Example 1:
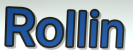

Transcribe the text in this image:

Rollin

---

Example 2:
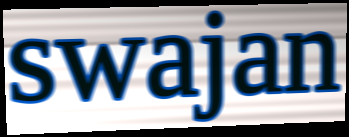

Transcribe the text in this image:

swajan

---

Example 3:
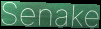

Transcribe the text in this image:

Senake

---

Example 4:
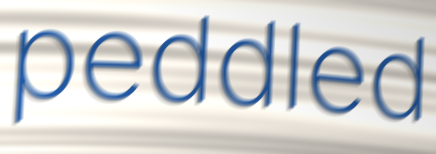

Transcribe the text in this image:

peddled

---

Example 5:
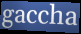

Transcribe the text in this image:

gaccha